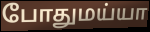
போதுமய்யா